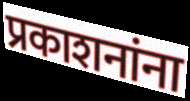
प्रकाशनांना